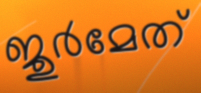
ജുർമേത്